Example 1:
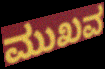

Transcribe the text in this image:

ಮುಖವ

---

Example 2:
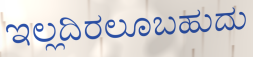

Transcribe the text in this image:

ಇಲ್ಲದಿರಲೂಬಹುದು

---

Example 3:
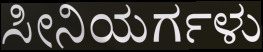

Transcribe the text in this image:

ಸೀನಿಯರ್ಗಳು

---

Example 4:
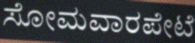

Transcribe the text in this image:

ಸೋಮವಾರಪೇಟೆ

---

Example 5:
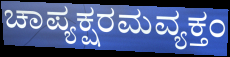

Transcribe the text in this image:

ಚಾಪ್ಯಕ್ಷರಮವ್ಯಕ್ತಂ